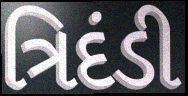
ત્રિદંડી